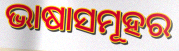
ଭାଷାସମୂହର